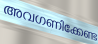
അവഗണിക്കേണ്ട